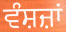
ਵੰਸ਼ਜ਼ਾਂ